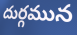
దుర్గమున